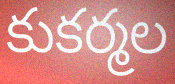
కుకర్మల